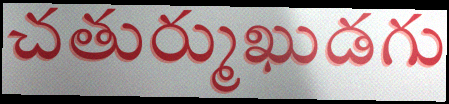
చతుర్ముఖుడగు